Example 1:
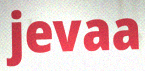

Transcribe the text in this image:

jevaa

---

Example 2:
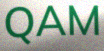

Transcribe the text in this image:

QAM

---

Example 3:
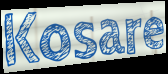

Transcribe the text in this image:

Kosare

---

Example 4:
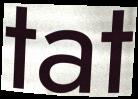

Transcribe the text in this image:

tat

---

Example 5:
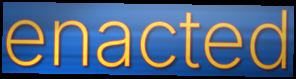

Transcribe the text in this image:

enacted